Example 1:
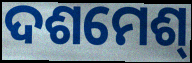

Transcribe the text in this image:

ଦଶମେଶ୍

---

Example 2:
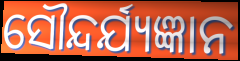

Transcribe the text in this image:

ସୌନ୍ଦର୍ଯ୍ୟଜ୍ଞାନ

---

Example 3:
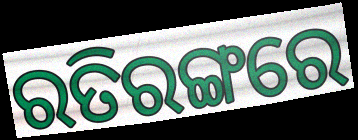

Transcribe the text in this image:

ରତିରଙ୍ଗରେ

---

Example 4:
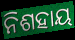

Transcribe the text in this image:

ନିଶହାୟ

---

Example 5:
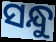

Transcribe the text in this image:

ସନ୍ଧୁ